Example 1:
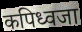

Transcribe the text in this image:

कपिध्वजा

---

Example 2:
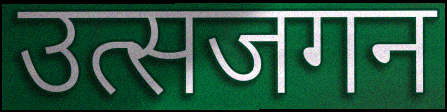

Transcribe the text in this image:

उत्सजगन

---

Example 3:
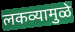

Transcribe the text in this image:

लकव्यामुळे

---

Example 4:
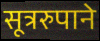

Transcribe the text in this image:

सूत्ररुपाने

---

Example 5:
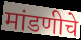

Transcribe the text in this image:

मांडणीचे